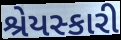
શ્રેયસ્કારી